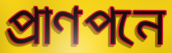
প্রাণপনে